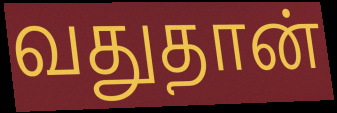
வதுதான்